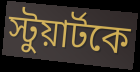
স্টুয়ার্টকে